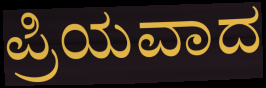
ಪ್ರಿಯವಾದ